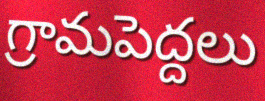
గ్రామపెద్దలు